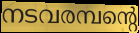
നടവരമ്പന്റെ